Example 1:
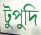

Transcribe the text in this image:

টুপুদি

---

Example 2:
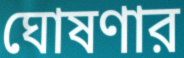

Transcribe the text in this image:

ঘোষণার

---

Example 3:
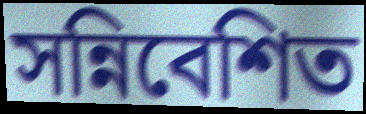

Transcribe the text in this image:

সন্নিবেশিত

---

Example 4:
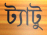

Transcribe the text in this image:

ট্যাটু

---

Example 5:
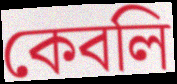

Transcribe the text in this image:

কেবলি